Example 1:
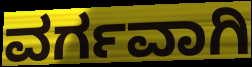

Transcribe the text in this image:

ವರ್ಗವಾಗಿ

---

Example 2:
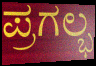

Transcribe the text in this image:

ಪ್ರಗಲ್ಭ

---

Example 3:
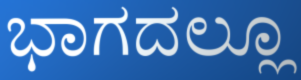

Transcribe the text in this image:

ಭಾಗದಲ್ಲೂ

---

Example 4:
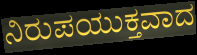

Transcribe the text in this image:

ನಿರುಪಯುಕ್ತವಾದ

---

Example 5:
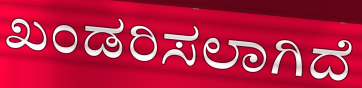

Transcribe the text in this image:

ಖಂಡರಿಸಲಾಗಿದೆ